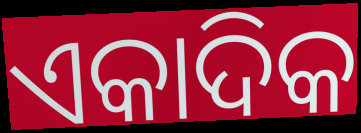
ଏକାଦିକ